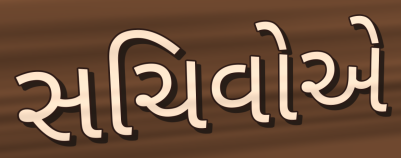
સચિવોએ